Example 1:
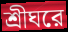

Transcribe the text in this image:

শ্রীঘরে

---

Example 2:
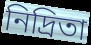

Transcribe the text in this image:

নিদ্রিতা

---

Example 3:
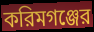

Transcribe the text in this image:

করিমগঞ্জের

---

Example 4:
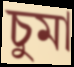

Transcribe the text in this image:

চুমা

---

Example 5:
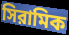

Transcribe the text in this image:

সিরামিক